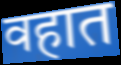
वहात